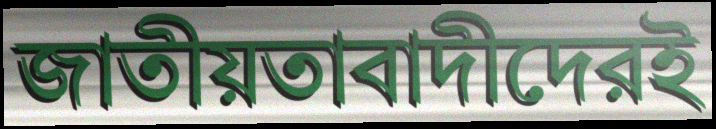
জাতীয়তাবাদীদেরই